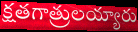
క్షతగాత్రులయ్యారు